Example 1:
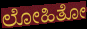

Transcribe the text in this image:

ಲೋಹಿತೋ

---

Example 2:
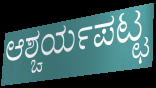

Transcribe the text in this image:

ಆಶ್ಚರ್ಯಪಟ್ಟ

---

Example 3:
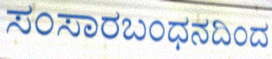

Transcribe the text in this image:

ಸಂಸಾರಬಂಧನದಿಂದ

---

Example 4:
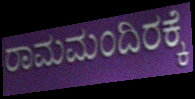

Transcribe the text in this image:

ರಾಮಮಂದಿರಕ್ಕೆ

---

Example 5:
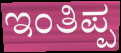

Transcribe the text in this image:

ಇಂತಿಪ್ಪ